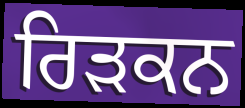
ਰਿੜਕਨ